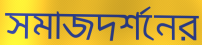
সমাজদর্শনের